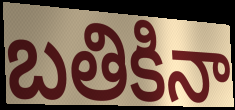
బతికినా